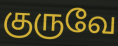
குருவே